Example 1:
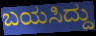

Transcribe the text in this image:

ಬಯಸಿದ್ದು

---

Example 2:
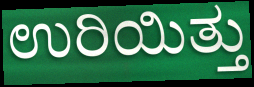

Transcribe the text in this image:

ಉರಿಯಿತ್ತು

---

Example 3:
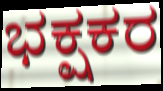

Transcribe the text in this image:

ಭಕ್ಷಕರ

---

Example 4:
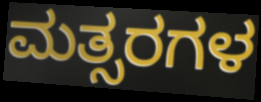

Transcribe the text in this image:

ಮತ್ಸರಗಳ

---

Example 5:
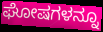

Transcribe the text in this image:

ಘೋಷಗಳನ್ನೂ